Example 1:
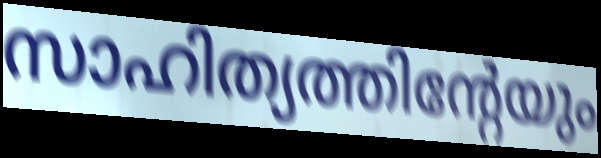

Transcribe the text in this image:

സാഹിത്യത്തിന്റേയും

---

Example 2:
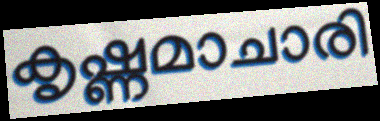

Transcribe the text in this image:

കൃഷ്ണമാചാരി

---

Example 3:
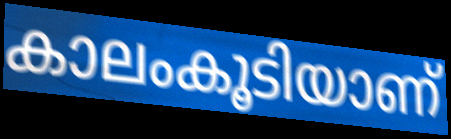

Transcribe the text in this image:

കാലംകൂടിയാണ്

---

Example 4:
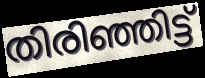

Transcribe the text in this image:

തിരിഞ്ഞിട്ട്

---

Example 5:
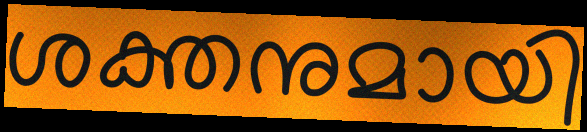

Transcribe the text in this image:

ശക്തനുമായി